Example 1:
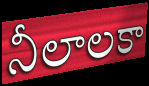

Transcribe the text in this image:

నీలాలకా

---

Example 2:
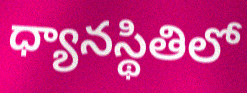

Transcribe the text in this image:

ధ్యానస్థితిలో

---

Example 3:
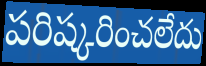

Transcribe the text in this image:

పరిష్కరించలేదు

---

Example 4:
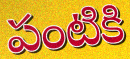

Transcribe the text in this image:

పంటికి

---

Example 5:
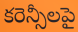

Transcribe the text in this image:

కరెన్సీలపై